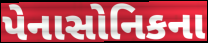
પેનાસોનિકના